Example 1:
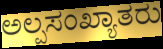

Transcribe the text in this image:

ಅಲ್ಪಸಂಖ್ಯಾತರು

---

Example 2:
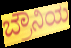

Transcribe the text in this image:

ಬ್ರೌನಿಯ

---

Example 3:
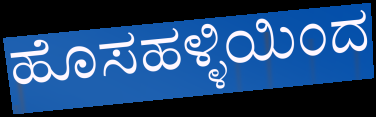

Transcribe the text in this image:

ಹೊಸಹಳ್ಳಿಯಿಂದ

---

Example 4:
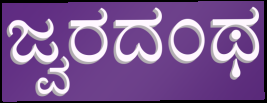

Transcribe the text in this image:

ಜ್ವರದಂಥ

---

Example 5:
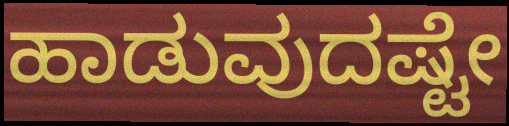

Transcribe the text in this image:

ಹಾಡುವುದಷ್ಟೇ